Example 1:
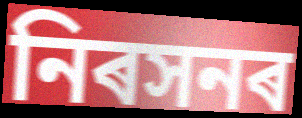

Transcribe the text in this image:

নিৰসনৰ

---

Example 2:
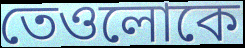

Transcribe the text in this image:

তেওলোকে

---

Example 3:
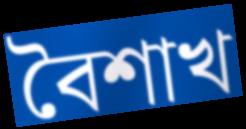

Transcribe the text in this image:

বৈশাখ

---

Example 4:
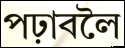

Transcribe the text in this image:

পঢ়াবলৈ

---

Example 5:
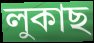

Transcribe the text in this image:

লুকাছ